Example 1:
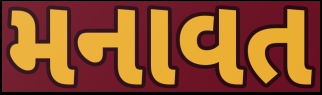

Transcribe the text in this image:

મનાવત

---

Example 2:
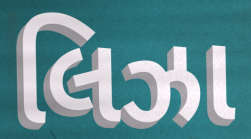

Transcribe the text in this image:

લિઝા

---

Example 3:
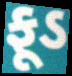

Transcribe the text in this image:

ફૂડ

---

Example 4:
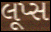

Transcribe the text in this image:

લૂપ્સ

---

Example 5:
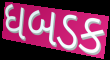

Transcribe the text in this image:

ધબડક